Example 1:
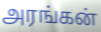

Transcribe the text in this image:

அரங்கன்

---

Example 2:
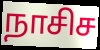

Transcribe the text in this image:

நாசிச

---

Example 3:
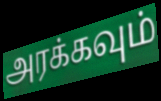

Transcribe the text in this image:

அரக்கவும்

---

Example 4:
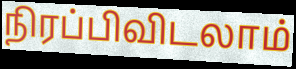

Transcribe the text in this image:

நிரப்பிவிடலாம்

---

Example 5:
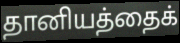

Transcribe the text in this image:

தானியத்தைக்